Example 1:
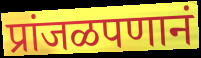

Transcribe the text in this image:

प्रांजळपणानं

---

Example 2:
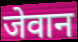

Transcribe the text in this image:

जेवान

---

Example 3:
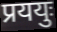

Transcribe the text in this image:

प्रययुः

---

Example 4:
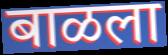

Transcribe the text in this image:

बाळला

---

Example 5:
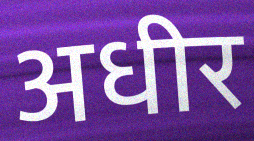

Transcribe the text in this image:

अधीर